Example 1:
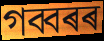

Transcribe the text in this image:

গব্বৰৰ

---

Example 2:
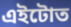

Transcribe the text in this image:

এইটোত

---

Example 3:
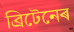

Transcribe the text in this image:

ব্ৰিটেনেৰ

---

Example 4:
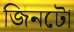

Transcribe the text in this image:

জিনটো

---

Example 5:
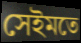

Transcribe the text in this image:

সেইমতে